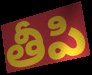
తీపి